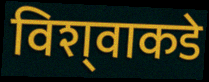
विश्वाकडे